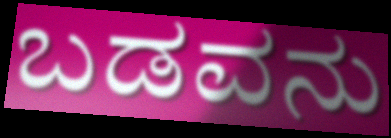
ಬಡವನು